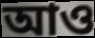
আও